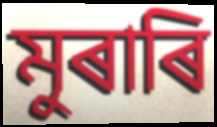
মুৰাৰি